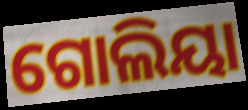
ଗୋଲିୟା